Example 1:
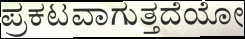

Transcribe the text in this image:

ಪ್ರಕಟವಾಗುತ್ತದೆಯೋ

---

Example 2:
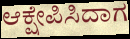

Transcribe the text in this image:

ಆಕ್ಷೇಪಿಸಿದಾಗ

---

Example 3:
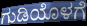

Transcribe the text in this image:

ಗುಡಿಯೊಳಗೆ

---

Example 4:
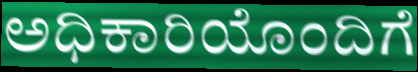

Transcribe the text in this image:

ಅಧಿಕಾರಿಯೊಂದಿಗೆ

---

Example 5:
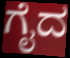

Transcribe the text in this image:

ಗೈದ